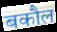
बकौल